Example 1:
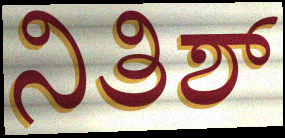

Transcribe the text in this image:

ನಿತಿಶ್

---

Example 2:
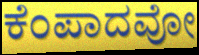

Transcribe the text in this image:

ಕೆಂಪಾದವೋ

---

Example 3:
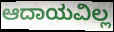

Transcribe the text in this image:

ಆದಾಯವಿಲ್ಲ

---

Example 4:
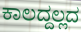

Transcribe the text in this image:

ಕಾಲದ್ದಲ್ಲದ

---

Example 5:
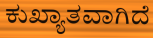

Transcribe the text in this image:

ಕುಖ್ಯಾತವಾಗಿದೆ